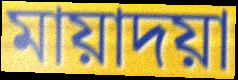
মায়াদয়া